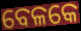
ବେଳକେ